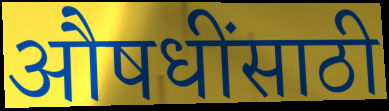
औषधींसाठी